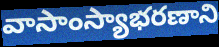
వాసాంస్యాభరణాని